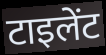
टाइलेंट